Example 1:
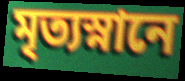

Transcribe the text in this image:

মৃত্যস্নানে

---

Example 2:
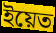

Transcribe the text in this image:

ইয়েত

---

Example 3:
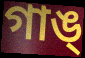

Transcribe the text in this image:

গাঙ্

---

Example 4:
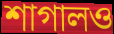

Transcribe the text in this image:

শাগালও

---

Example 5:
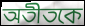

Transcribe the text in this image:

অতীতকে